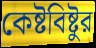
কেষ্টবিষ্টুর